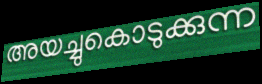
അയച്ചുകൊടുക്കുന്ന